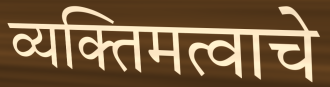
व्यक्तिमत्वाचे